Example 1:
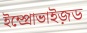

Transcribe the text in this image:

ইম্প্রোভাইজ়ড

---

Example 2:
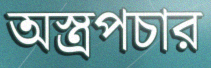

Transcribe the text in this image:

অস্ত্রপচার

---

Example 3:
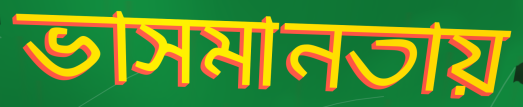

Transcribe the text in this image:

ভাসমানতায়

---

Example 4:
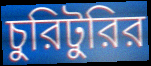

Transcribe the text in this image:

চুরিটুরির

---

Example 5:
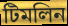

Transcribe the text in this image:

টিমলিন